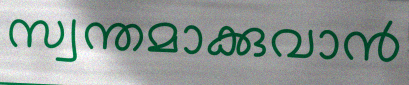
സ്വന്തമാക്കുവാൻ